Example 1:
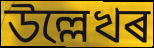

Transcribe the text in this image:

উল্লেখৰ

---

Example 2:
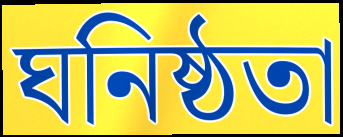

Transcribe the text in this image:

ঘনিষ্ঠতা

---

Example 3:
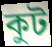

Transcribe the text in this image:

কুট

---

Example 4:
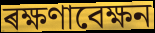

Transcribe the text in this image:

ৰক্ষণাবেক্ষন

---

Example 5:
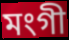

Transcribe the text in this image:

মংগী